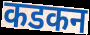
कडकन